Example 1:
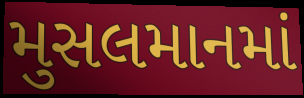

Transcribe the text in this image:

મુસલમાનમાં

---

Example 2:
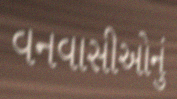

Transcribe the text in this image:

વનવાસીઓનું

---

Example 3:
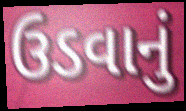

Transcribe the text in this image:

ઉડવાનું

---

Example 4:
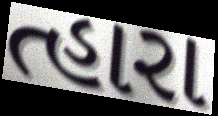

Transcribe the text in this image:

ત્હારા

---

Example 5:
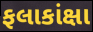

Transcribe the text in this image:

ફલાકાંક્ષા